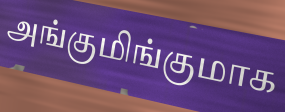
அங்குமிங்குமாக